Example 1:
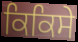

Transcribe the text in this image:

ਕਿਕਿਸੇ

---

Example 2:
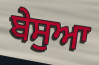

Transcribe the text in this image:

ਬੇਸੁਆ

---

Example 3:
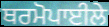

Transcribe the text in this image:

ਥਰਮੋਪਾਈਲੇ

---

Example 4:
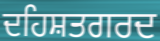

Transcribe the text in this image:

ਦਹਿਸ਼ਤਗਰਦ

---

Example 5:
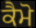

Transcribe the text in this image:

ਕੈਮੋ